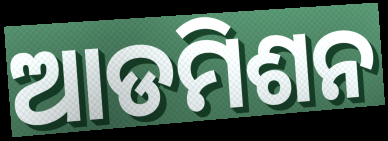
ଆଡମିଶନ